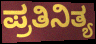
ಪ್ರತಿನಿತ್ಯ